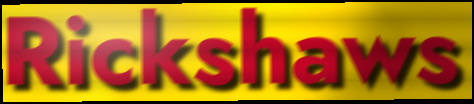
Rickshaws